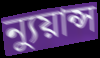
ন্যুয়ান্স